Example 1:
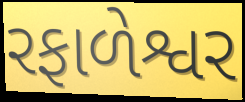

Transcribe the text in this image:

રફાળેશ્વર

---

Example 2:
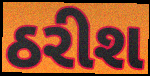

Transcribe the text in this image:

ઠરીશ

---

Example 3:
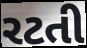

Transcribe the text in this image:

રટતી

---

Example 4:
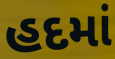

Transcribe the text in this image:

હદમાં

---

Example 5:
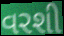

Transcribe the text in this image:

વરશી